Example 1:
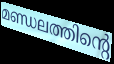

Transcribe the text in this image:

മണ്ഡലത്തിന്റെ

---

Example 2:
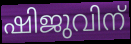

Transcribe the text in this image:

ഷിജുവിന്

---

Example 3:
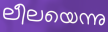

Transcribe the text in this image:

ലീലയെന്നു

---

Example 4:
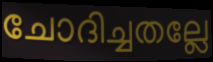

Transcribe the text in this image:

ചോദിച്ചതല്ലേ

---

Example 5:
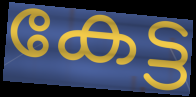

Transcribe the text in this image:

കേട്ട